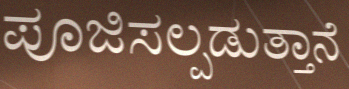
ಪೂಜಿಸಲ್ಪಡುತ್ತಾನೆ